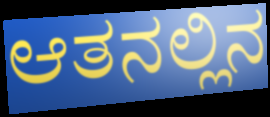
ಆತನಲ್ಲಿನ